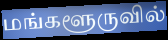
மங்களூருவில்